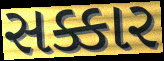
સક્કાર